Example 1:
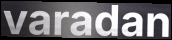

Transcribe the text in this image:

varadan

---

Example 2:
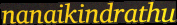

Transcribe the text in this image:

nanaikindrathu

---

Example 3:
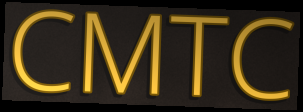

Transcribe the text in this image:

CMTC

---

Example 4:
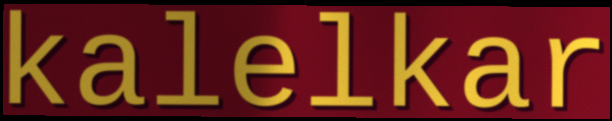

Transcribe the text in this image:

kalelkar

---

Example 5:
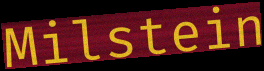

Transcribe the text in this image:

Milstein